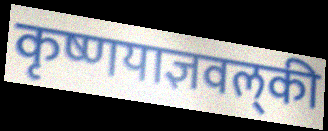
कृष्णयाज्ञवल्की